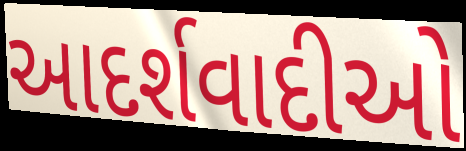
આદર્શવાદીઓ